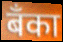
बँका